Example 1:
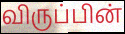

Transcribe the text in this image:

விருப்பின்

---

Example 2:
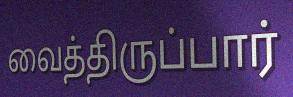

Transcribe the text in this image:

வைத்திருப்பார்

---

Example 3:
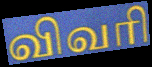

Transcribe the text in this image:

விவரி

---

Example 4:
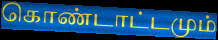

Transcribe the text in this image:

கொண்டாட்டமும்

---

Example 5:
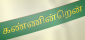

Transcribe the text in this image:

கண்ணின்றென்